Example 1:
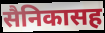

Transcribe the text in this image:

सैनिकासह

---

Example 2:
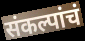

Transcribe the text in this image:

संकल्पांचं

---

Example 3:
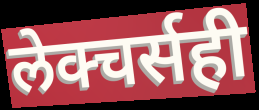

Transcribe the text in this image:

लेक्चर्सही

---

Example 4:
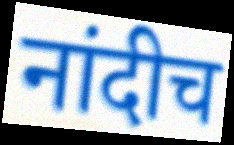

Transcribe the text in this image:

नांदीच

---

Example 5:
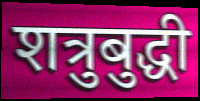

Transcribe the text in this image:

शत्रुबुद्धी